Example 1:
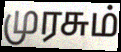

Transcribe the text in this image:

முரசும்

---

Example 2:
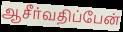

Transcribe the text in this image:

ஆசீர்வதிப்பேன்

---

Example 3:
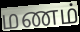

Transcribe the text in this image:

மணம்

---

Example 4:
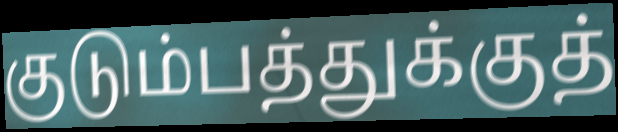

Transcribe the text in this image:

குடும்பத்துக்குத்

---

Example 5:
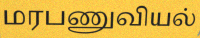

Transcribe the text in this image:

மரபணுவியல்